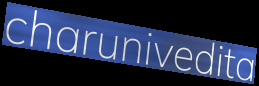
charunivedita